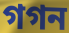
গগন